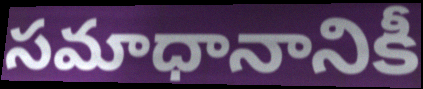
సమాధానానికీ